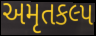
અમૃતકલ્પ